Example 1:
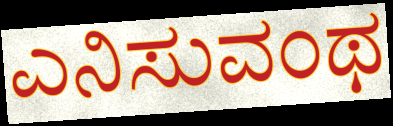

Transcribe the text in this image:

ಎನಿಸುವಂಥ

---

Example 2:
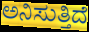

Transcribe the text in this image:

ಅನಿಸುತ್ತಿದೆ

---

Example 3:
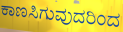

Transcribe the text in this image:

ಕಾಣಸಿಗುವುದರಿಂದ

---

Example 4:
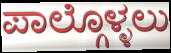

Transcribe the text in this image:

ಪಾಲ್ಗೊಳ್ಳಲು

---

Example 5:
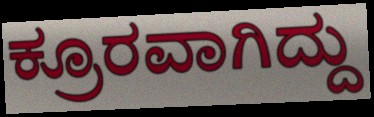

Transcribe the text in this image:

ಕ್ರೂರವಾಗಿದ್ದು